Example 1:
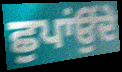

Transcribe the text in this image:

ਛੁਪਾਂਉਂਦੇ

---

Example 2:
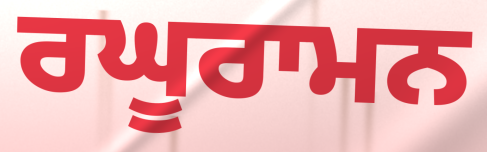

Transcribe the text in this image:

ਰਘੂਰਾਮਨ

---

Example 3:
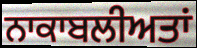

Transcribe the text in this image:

ਨਾਕਾਬਲੀਅਤਾਂ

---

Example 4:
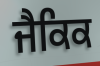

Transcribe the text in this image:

ਜੈਕਿਕ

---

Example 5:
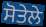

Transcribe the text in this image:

ਸੋਤੇਲੇ